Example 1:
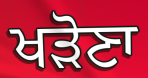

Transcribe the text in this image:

ਖੜੋਣਾ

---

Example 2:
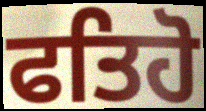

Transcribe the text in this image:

ਫਤਿਹੋ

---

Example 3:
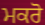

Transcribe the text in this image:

ਮਕਰੋ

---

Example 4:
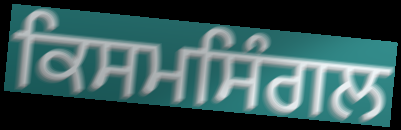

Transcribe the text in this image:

ਕਿਸਮਸਿੰਗਲ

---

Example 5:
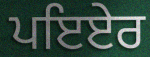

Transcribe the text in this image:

ਪਇਏਰ